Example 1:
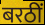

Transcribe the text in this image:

बरठीं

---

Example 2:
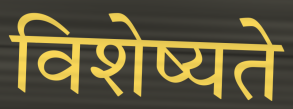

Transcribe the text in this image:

विशेष्यते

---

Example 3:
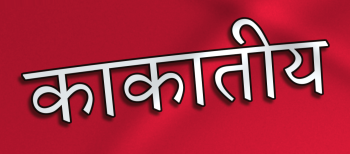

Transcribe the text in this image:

काकातीय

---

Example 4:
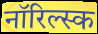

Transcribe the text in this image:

नॉरिल्स्क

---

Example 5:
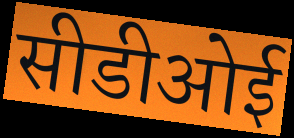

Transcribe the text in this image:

सीडीओई